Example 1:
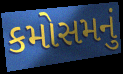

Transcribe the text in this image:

કમોસમનું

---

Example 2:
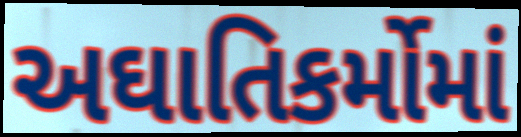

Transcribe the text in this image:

અઘાતિકર્મોમાં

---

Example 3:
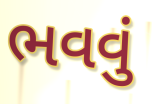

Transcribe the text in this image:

ભવવું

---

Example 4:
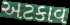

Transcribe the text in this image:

અટકાવ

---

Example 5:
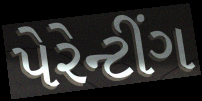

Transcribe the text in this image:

પેરેન્ટીંગ